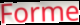
Forme